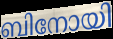
ബിനോയി